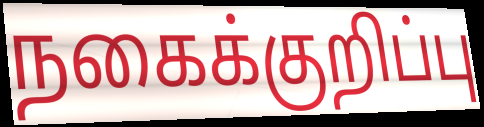
நகைக்குறிப்பு